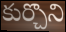
కుర్చొని